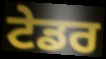
ਟੇਡਰ